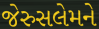
જેરુસલેમને